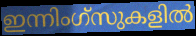
ഇന്നിംഗ്സുകളിൽ